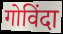
गोविंदा